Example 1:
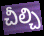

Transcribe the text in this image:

చీల్చి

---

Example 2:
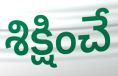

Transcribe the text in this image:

శిక్షించే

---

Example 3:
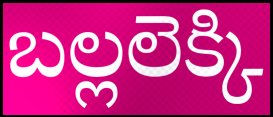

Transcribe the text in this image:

బల్లలెక్కి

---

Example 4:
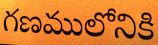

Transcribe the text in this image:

గణములోనికి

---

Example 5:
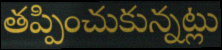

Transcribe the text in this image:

తప్పించుకున్నట్లు